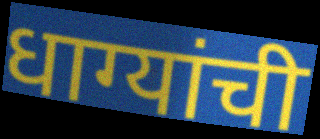
धाग्यांची